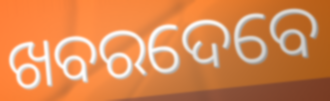
ଖବରଦେବେ